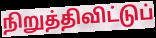
நிறுத்திவிட்டுப்